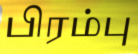
பிரம்பு